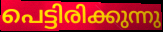
പെട്ടിരിക്കുന്നു